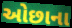
ઓછાના